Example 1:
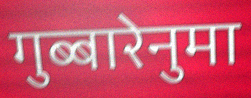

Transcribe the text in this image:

गुब्बारेनुमा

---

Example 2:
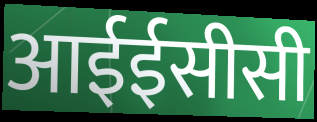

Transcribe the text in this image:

आईईसीसी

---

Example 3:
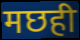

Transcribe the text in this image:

मछही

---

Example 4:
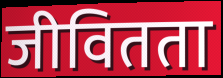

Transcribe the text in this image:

जीवितता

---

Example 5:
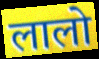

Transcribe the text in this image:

लालो